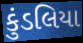
કુંડલિયા